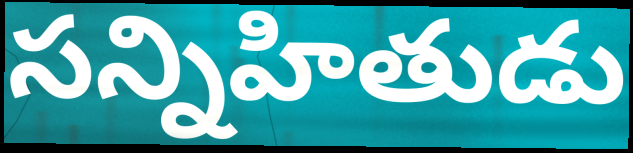
సన్నిహితుడు